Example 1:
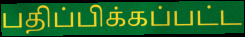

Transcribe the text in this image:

பதிப்பிக்கப்பட்ட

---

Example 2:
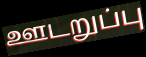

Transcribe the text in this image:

ஊடறுப்பு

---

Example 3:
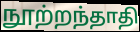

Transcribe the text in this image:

நூற்றந்தாதி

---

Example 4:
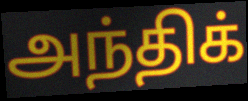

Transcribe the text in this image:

அந்திக்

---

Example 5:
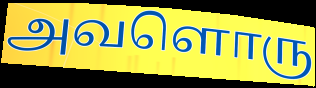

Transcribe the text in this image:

அவளொரு